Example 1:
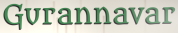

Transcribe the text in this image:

Gurannavar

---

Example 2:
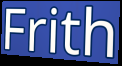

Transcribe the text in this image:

Frith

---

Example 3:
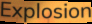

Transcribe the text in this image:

Explosion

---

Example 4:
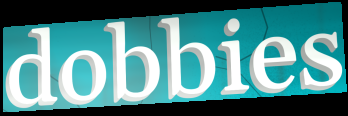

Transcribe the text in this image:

dobbies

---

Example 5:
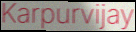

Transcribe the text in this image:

Karpurvijay